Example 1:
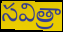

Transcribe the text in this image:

సవిత్రా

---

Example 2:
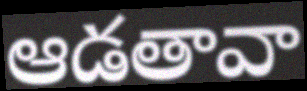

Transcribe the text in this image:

ఆడతావా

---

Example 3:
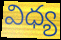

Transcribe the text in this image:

విధ్య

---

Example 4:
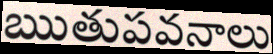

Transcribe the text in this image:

ఋతుపవనాలు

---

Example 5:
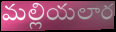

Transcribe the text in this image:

మల్లియలార